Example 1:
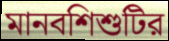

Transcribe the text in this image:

মানবশিশুটির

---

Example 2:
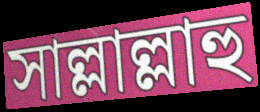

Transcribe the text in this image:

সাল্লাল্লাহু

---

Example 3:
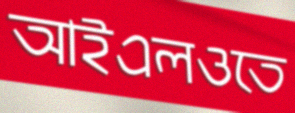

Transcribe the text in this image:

আইএলওতে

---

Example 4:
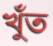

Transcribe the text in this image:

খুঁত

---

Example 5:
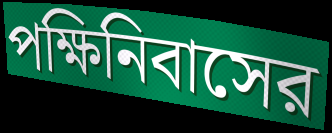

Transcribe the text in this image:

পক্ষিনিবাসের